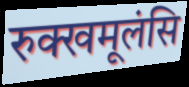
रुक्खमूलंसि